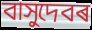
বাসুদেবৰ